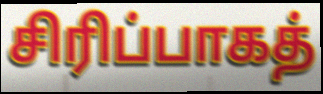
சிரிப்பாகத்